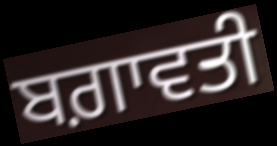
ਬਗ਼ਾਵਤੀ